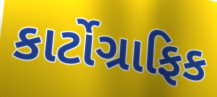
કાર્ટોગ્રાફિક